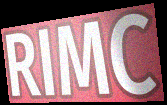
RIMC